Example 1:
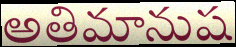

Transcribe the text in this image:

అతిమానుష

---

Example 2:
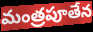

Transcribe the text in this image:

మంత్రపూతేన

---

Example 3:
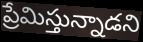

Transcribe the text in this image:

ప్రేమిస్తున్నాడని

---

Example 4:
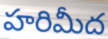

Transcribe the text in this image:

హరిమీద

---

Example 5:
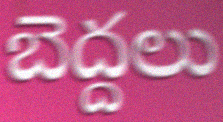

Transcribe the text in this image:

బెద్దలు